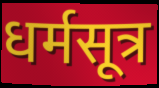
धर्मसूत्र